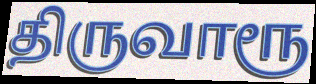
திருவாரூ